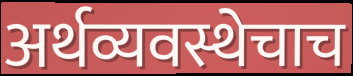
अर्थव्यवस्थेचाच